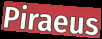
Piraeus